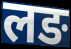
लङ